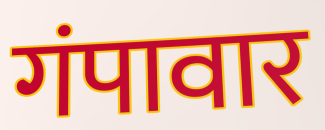
गंपावार